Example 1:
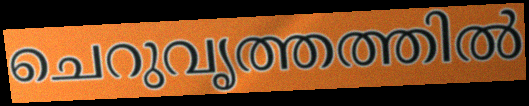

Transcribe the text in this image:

ചെറുവൃത്തത്തിൽ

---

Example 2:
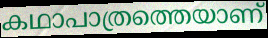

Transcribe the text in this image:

കഥാപാത്രത്തെയാണ്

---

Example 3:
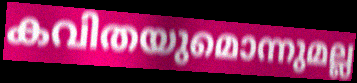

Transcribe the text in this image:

കവിതയുമൊന്നുമല്ല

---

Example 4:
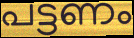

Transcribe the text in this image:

പട്ടണം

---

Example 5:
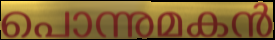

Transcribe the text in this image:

പൊന്നുമകൻ